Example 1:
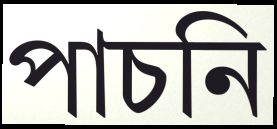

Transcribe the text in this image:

পাচনি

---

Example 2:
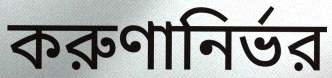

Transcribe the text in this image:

করুণানির্ভর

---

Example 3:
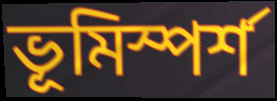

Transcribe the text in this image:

ভূমিস্পর্শ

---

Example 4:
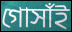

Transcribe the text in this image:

গোসাঁই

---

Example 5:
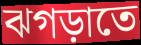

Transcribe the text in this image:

ঝগড়াতে